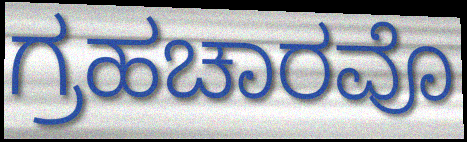
ಗ್ರಹಚಾರವೊ